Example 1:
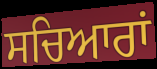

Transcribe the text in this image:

ਸਚਿਆਰਾਂ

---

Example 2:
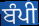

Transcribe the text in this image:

ਬੰਪੀ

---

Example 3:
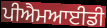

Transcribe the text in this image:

ਪੀਐਮਆਈਡੀ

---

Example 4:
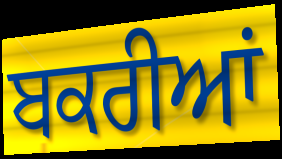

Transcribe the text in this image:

ਬਕਰੀਆਂ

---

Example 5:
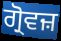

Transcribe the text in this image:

ਗ੍ਰੋਵਜ਼